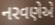
નરવણેએ